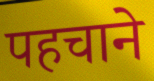
पहचाने